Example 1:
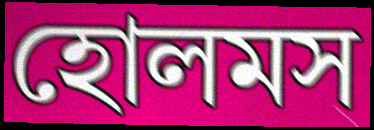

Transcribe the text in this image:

হোলমস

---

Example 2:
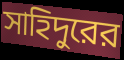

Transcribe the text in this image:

সাহিদুরের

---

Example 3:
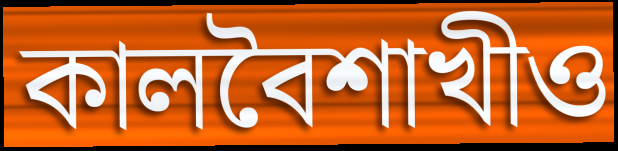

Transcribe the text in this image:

কালবৈশাখীও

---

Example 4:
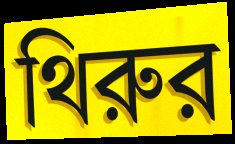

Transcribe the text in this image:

থিরুর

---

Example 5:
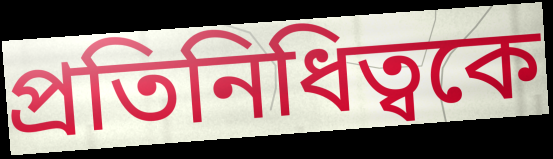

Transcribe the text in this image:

প্রতিনিধিত্বকে